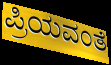
ಪ್ರಿಯವಂತೆ